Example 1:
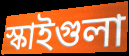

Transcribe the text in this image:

স্কাইগুলা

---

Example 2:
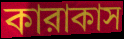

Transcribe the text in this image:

কারাকাস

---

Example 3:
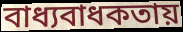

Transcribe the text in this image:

বাধ্যবাধকতায়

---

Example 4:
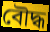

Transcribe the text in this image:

বৌদ্ধ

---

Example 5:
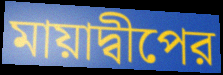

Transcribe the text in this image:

মায়াদ্বীপের